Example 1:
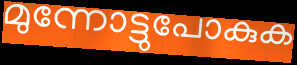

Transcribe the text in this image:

മുന്നോട്ടുപോകുക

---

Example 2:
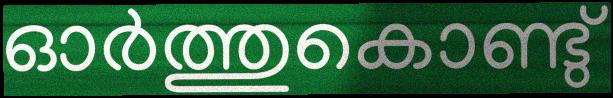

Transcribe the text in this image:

ഓർത്തുകൊണ്ടു്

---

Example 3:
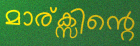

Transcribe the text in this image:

മാര്ക്സിന്റെ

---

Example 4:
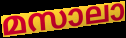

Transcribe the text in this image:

മസാലാ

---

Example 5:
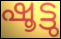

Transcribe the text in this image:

ഷൂട്ടു